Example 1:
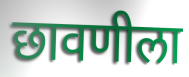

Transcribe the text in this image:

छावणीला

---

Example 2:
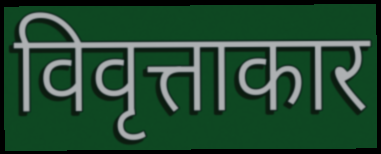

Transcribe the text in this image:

विवृत्ताकार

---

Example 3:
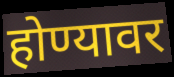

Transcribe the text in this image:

होण्यावर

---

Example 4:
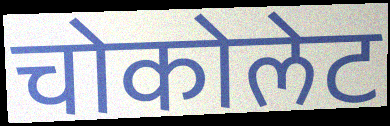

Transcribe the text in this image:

चोकोलेट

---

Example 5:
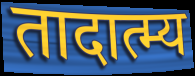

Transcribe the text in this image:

तादात्म्य